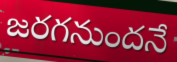
జరగనుందనే